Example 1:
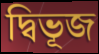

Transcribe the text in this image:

দ্বিভূজ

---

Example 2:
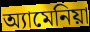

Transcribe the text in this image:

অ্যামেনিয়া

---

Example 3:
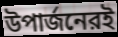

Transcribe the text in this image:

উপার্জনেরই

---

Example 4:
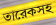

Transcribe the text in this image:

তারেকসহ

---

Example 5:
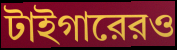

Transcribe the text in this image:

টাইগারেরও